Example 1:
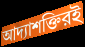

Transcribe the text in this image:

আদ্যাশক্তিরই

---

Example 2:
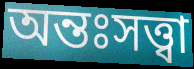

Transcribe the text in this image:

অন্তঃসত্ত্বা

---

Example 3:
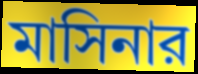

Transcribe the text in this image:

মাসিনার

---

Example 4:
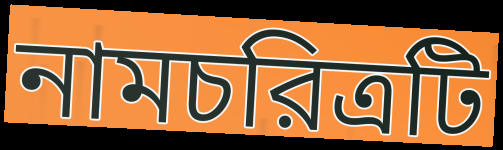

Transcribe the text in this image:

নামচরিত্রটি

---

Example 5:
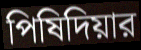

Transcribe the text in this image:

পিষিদিয়ার